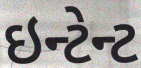
ઇન્ટેન્ટ